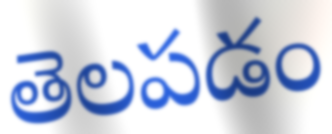
తెలపడం